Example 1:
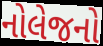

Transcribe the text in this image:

નોલેજનો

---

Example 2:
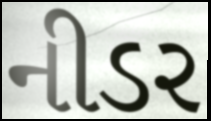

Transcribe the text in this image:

નીડર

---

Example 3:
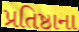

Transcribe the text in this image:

પ્રતિષ્ઠાના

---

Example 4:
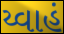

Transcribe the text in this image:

ય્વાહં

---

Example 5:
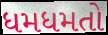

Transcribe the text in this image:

ધમધમતો